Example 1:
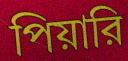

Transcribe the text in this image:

পিয়ারি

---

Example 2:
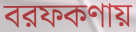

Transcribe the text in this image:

বরফকণায়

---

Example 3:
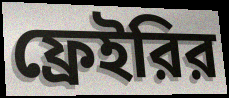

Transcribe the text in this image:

ফ্রেইরির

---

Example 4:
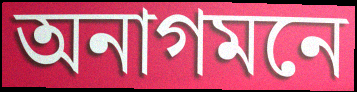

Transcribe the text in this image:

অনাগমনে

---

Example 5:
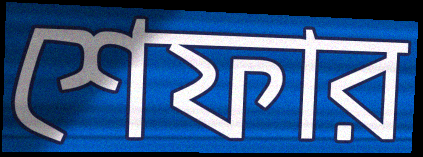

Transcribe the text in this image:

শেফার